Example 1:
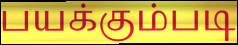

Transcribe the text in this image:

பயக்கும்படி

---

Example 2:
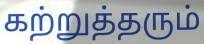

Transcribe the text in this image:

கற்றுத்தரும்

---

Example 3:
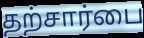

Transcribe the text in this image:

தற்சார்பை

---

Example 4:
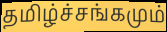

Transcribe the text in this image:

தமிழ்ச்சங்கமும்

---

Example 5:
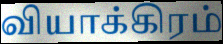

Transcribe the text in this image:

வியாக்கிரம்